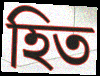
হিত